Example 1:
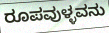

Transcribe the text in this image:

ರೂಪವುಳ್ಳವನು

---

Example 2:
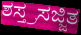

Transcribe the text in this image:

ಶಸ್ತ್ರಸಜ್ಜಿತ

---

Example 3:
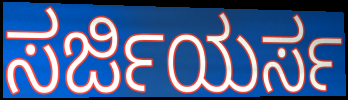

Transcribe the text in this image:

ಸರ್ಜಿಯರ್ಸ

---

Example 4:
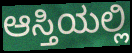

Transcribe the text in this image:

ಆಸ್ತಿಯಲ್ಲಿ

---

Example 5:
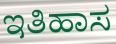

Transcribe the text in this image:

ಇತಿಹಾಸ